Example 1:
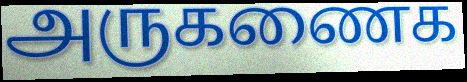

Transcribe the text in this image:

அருகணைக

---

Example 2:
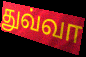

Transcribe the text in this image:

துவ்வா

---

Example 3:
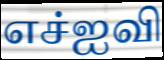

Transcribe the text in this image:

எச்ஐவி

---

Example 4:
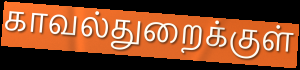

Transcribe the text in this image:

காவல்துறைக்குள்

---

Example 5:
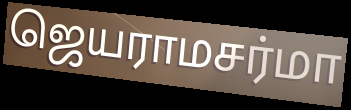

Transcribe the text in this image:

ஜெயராமசர்மா